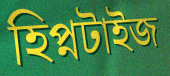
হিপ্নটাইজ